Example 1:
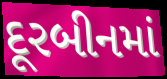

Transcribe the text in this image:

દૂરબીનમાં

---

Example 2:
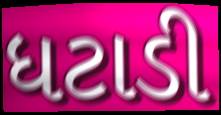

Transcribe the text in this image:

ધટાડી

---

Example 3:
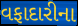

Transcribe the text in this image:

વફાદારીના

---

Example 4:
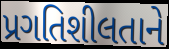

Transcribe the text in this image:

પ્રગતિશીલતાને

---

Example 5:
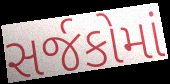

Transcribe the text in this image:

સર્જકોમાં